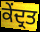
ਕੇਂਦ੍ਰਤ